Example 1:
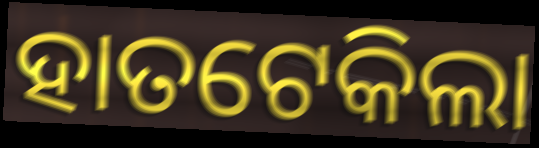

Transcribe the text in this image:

ହାତଟେକିଲା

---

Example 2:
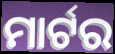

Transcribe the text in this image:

ମାର୍ଟର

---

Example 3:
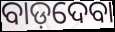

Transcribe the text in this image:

ବାଡ଼ଦେବା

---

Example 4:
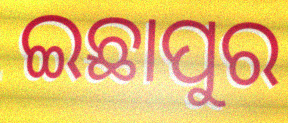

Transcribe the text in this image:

ଇଛାପୁର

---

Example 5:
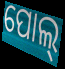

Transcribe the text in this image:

ପୋଲ୍